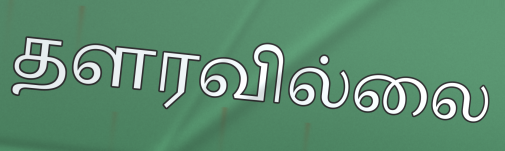
தளரவில்லை